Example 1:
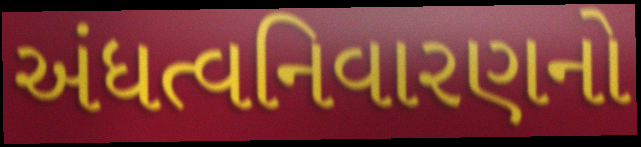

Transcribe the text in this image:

અંધત્વનિવારણનો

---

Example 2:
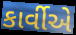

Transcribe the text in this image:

કાર્વીએ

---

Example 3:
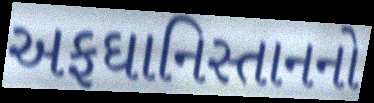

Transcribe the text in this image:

અફઘાનિસ્તાનનો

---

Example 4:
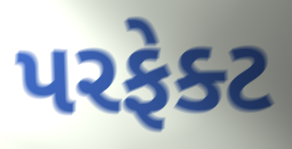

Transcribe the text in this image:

પરફેક્ટ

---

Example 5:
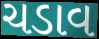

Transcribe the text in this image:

ચડાવ